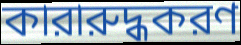
কারারুদ্ধকরণ